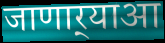
जाणार्याआ